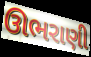
ઊભરાણી